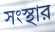
সংস্থার